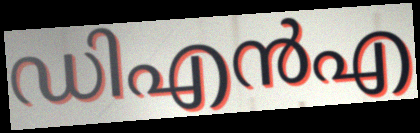
ഡിഎൻഎ